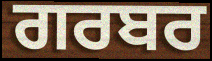
ਗਰਬਰ